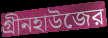
গ্রীনহাউজের